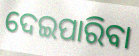
ଦେଇପାରିବା